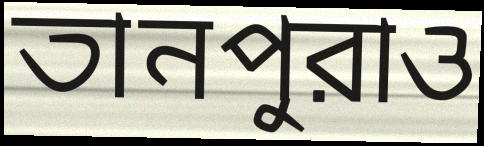
তানপুরাও